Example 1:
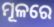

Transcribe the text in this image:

ମୂଳରେ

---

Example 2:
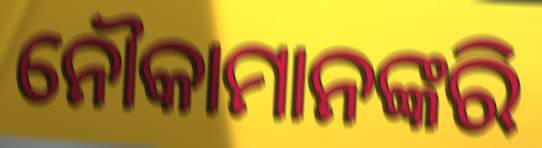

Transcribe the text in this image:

ନୌକାମାନଙ୍କରି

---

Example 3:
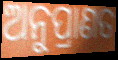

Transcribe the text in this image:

ଅନୁପ୍ରାଣତ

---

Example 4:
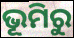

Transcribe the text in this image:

ଭୂମିରୁ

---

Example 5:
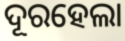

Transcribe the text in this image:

ଦୂରହେଲା